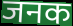
जनक